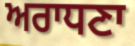
ਅਰਾਧਣਾ